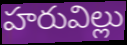
హరువిల్లు